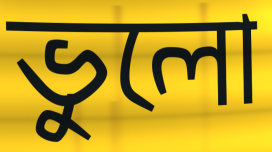
ভুলো